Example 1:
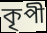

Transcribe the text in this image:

কৃপী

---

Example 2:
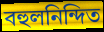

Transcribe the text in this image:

বহুলনিন্দিত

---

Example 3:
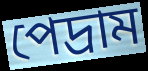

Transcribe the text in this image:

পেদ্রাম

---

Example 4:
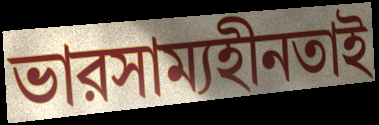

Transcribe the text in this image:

ভারসাম্যহীনতাই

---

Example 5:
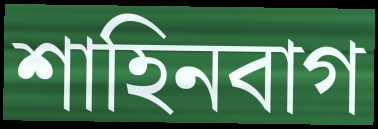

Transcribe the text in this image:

শাহিনবাগ